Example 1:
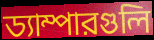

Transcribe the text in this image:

ড্যাম্পারগুলি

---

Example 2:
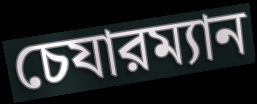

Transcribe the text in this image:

চেযারম্যান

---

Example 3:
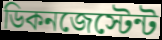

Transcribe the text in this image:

ডিকনজেস্টেন্ট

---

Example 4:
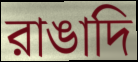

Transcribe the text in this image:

রাঙাদি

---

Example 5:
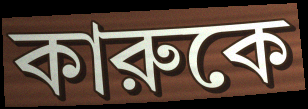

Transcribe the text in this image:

কারুকে